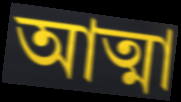
আত্মা